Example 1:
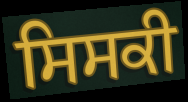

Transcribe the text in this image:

ਸਿਸਕੀ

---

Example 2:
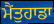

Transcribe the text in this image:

ਮੈਂਤੁਹਾਡਾ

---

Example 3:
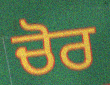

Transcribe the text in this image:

ਚੋਰ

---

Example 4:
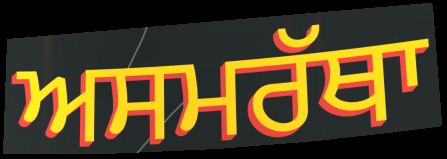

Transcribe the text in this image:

ਅਸਮਰੱਥਾ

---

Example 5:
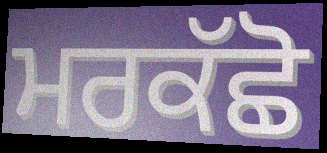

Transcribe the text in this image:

ਮਰਕੱਛੋ